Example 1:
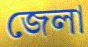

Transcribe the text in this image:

জেলা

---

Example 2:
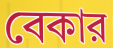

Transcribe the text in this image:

বেকার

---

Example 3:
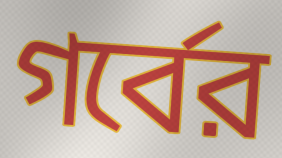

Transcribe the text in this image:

গর্বের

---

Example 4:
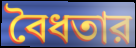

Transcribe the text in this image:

বৈধতার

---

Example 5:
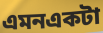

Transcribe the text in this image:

এমনএকটা